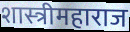
शास्त्रीमहाराज